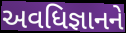
અવધિજ્ઞાનને